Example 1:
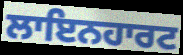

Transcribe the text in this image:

ਲਾਇਨਹਾਰਟ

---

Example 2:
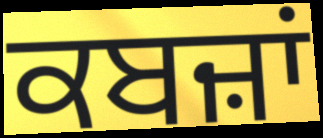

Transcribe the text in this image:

ਕਬਜ਼ਾਂ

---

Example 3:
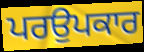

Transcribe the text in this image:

ਪਰਉਪਕਾਰ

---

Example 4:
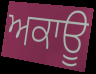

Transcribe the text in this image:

ਅਕਾਊ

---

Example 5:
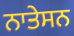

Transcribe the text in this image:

ਨਾਤੇਸਨ